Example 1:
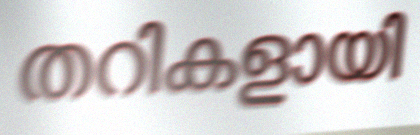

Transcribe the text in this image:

തറികളായി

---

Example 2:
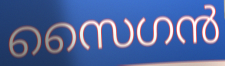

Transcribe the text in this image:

സൈഗൻ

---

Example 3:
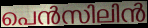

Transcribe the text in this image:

പെൻസിലിൻ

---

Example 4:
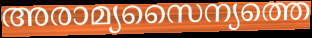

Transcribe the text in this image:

അരാമ്യസൈന്യത്തെ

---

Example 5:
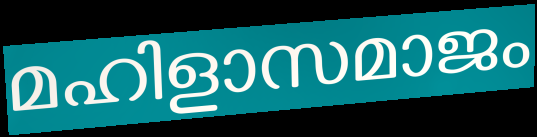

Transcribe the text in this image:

മഹിളാസമാജം